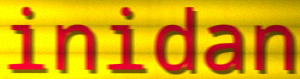
inidan